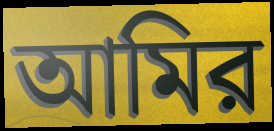
আমির